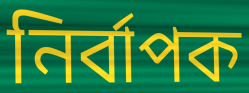
নির্বাপক